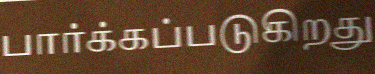
பார்க்கப்படுகிறது